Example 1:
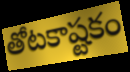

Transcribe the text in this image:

తోటకాష్టకం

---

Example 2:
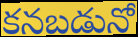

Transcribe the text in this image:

కనబడునో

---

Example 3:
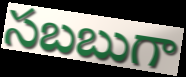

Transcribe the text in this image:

సబబుగా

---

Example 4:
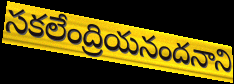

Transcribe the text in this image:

సకలేంద్రియనందనాని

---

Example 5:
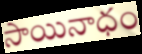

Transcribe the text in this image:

సాయినాధం